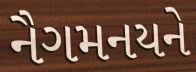
નૈગમનયને